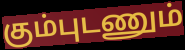
கும்புடணும்